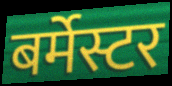
बर्मेस्टर